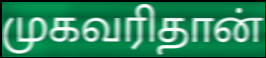
முகவரிதான்